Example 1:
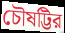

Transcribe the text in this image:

চৌষট্টির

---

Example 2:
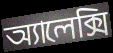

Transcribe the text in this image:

অ্যালেক্সি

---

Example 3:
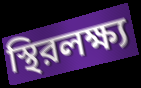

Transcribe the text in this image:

স্থিরলক্ষ্য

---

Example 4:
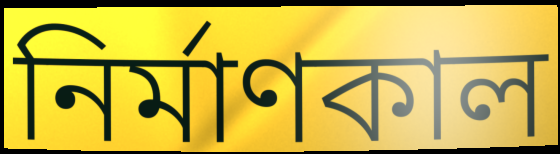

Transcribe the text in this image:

নির্মাণকাল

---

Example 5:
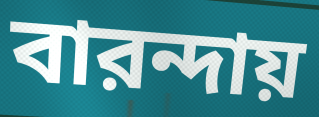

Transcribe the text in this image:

বারন্দায়